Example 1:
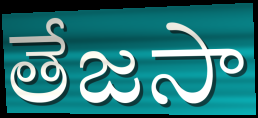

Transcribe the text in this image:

తేజసా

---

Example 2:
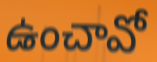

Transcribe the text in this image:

ఉంచావో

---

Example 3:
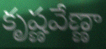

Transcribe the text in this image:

కృష్ణవేణ్ణా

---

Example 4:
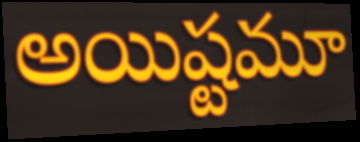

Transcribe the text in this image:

అయిష్టమూ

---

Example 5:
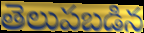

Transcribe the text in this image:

తెలుపబడిన